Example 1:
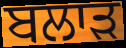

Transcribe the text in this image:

ਬਲਾੜ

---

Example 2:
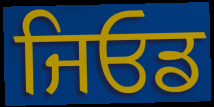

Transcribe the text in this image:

ਜਿਓਡ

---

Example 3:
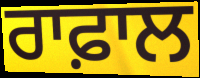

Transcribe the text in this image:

ਰਾਫ਼ਾਲ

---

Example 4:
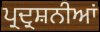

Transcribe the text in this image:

ਪ੍ਰਦ੍ਰਸ਼ਨੀਆਂ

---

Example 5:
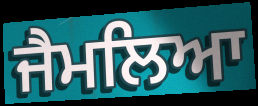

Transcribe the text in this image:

ਜੈਮਲਿਆ